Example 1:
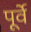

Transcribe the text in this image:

पूर्वे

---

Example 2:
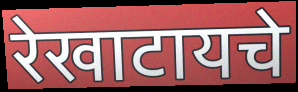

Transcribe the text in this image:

रेखाटायचे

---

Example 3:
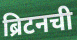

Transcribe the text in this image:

ब्रिटनची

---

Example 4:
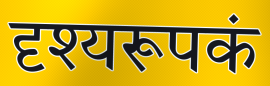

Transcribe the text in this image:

दृश्‍यरूपकं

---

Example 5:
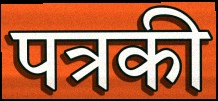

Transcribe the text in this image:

पत्रकी